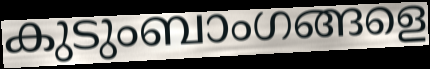
കുടുംബാംഗങ്ങളെ